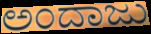
ಅಂದಾಜು